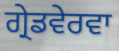
ਗ੍ਰੇਡਵੇਰਵਾ